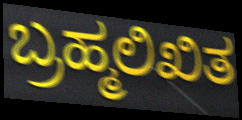
ಬ್ರಹ್ಮಲಿಖಿತ